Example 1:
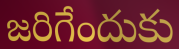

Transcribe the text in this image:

జరిగేందుకు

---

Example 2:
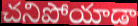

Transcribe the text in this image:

చనిపోయాడా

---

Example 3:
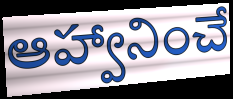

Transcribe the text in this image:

ఆహ్వానించే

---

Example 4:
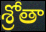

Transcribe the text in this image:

శ్రోతా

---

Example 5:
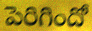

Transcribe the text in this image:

పెరిగిందో